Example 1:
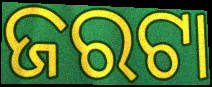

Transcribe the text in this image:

ଜରଟା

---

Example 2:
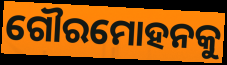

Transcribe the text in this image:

ଗୌରମୋହନକୁ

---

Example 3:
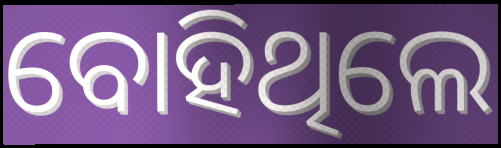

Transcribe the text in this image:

ବୋହିଥିଲେ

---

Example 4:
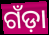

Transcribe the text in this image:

ଗଁଡ଼ା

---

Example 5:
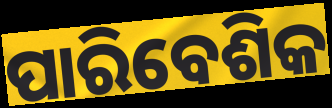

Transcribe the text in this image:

ପାରିବେଶିକ